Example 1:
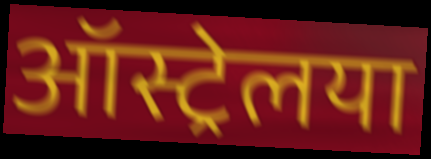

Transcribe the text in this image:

ऑस्ट्रेलया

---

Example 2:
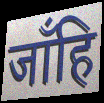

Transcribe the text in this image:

जाँहि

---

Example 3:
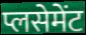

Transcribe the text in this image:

प्लसेमेंट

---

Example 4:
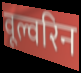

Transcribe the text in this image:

वूल्वरिन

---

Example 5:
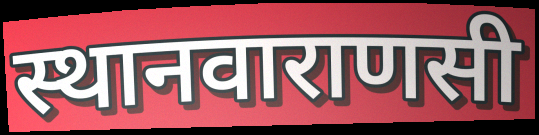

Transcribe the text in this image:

स्थानवाराणसी